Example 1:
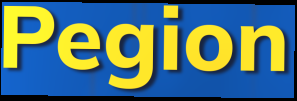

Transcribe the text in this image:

Pegion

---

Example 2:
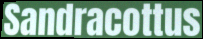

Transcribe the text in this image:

Sandracottus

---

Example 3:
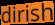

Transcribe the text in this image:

dirish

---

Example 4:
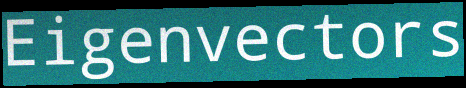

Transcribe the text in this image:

Eigenvectors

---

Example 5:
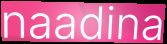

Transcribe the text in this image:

naadina